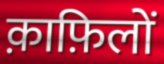
क़ाफ़िलों